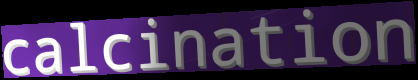
calcination